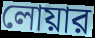
লোয়ার